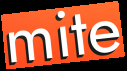
mite